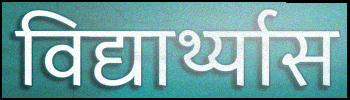
विद्यार्थ्यास